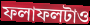
ফলাফলটাও